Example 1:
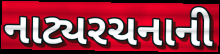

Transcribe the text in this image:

નાટ્યરચનાની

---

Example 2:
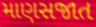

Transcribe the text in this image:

માણસજાત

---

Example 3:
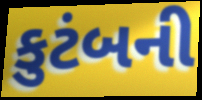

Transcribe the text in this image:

કુટંબની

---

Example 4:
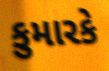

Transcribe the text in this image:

કુમારકે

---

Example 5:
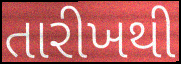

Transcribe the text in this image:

તારીખથી